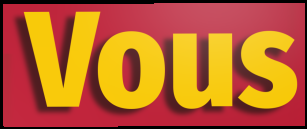
Vous